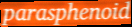
parasphenoid